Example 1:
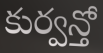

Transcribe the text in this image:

కుర్వన్తో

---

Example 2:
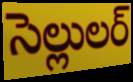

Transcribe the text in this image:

సెల్లులర్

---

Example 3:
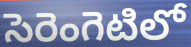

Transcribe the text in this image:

సెరెంగెటిలో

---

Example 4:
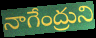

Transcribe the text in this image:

నాగేంద్రుని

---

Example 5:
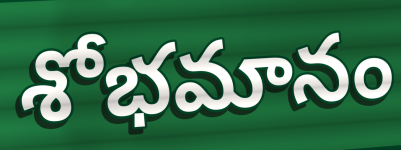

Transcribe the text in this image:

శోభమానం